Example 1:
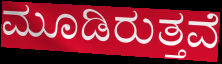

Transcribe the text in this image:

ಮೂಡಿರುತ್ತವೆ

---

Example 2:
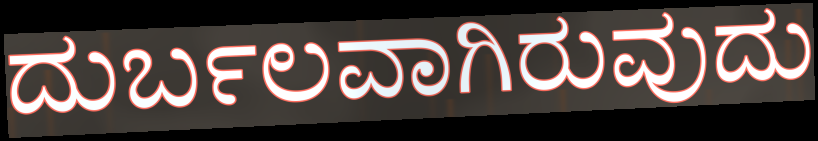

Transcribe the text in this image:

ದುರ್ಬಲವಾಗಿರುವುದು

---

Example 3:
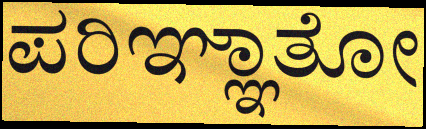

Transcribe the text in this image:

ಪರಿಞ್ಞಾತೋ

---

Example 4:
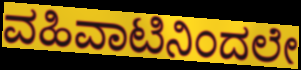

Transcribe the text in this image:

ವಹಿವಾಟಿನಿಂದಲೇ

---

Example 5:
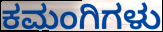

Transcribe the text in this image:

ಕಮಂಗಿಗಳು